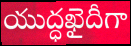
యుద్ధఖైదీగా